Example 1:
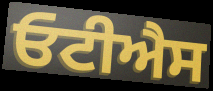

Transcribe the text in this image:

ਓਟੀਐਸ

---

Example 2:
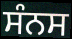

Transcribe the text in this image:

ਸੰਨਸ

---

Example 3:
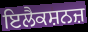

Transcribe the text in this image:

ਇਲੈਕਸ਼ਨਜ਼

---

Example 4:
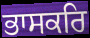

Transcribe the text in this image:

ਭਾਸਕਰਿ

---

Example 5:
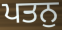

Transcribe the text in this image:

ਪਤਨੁ